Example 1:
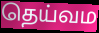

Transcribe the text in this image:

தெய்வம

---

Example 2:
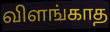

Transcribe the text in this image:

விளங்காத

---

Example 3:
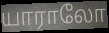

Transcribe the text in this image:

யாராலோ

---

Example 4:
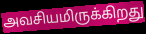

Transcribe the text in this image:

அவசியமிருக்கிறது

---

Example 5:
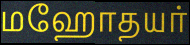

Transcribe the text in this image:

மஹோதயர்